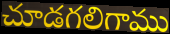
చూడగలిగాము